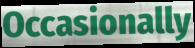
Occasionally